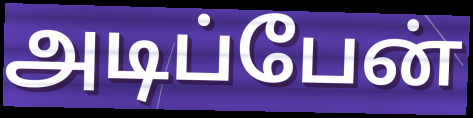
அடிப்பேன்